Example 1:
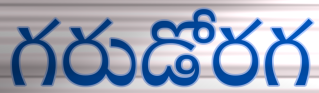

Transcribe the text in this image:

గరుడోరగ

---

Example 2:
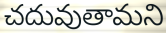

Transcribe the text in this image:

చదువుతామని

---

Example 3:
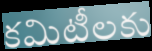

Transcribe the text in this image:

కమిటీలకు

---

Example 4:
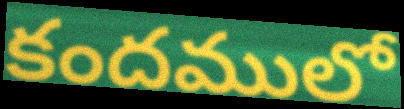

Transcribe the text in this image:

కందములో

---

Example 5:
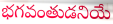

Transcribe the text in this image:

భగవంతుడనియే